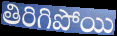
తిరిగిపోయి